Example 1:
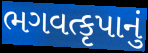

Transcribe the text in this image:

ભગવત્કૃપાનું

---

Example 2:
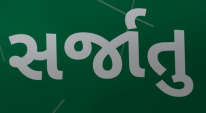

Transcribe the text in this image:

સર્જાતુ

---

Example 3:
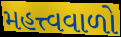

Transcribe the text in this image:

મહત્ત્વવાળો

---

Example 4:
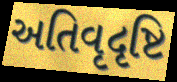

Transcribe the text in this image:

અતિવૃદૃષ્ટિ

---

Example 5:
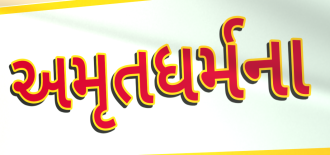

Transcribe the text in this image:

અમૃતધર્મના